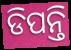
ଡିପନ୍ତି